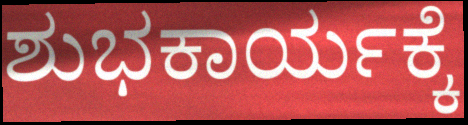
ಶುಭಕಾರ್ಯಕ್ಕೆ